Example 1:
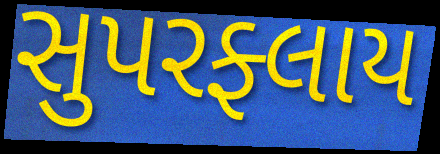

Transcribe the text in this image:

સુપરફ્લાય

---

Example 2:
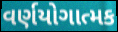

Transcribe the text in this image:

વર્ણયોગાત્મક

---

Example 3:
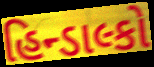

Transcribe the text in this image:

હિન્ડાલ્કો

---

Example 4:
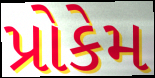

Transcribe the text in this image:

પ્રોકેમ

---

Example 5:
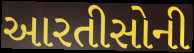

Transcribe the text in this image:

આરતીસોની